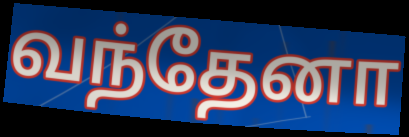
வந்தேனா